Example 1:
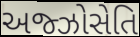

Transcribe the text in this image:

અજ્ઝોસેતિ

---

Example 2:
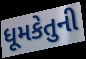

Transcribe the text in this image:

ધૂમકેતુની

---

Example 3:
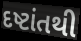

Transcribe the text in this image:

દષ્ટાંતથી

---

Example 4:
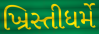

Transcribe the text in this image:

ખ્રિસ્તીધર્મે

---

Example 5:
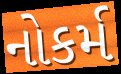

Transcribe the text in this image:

નોકર્મ